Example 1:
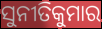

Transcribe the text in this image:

ସୁନୀତିକୁମାର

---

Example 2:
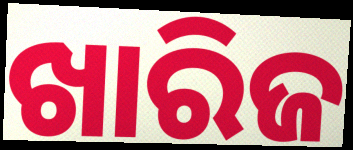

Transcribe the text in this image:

ଖାରିଜ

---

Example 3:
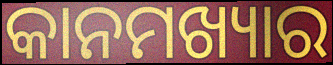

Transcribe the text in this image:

କାନମଖ୍ୟାର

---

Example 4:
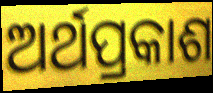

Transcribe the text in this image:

ଅର୍ଥପ୍ରକାଶ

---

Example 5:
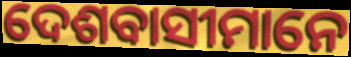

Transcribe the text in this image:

ଦେଶବାସୀମାନେ